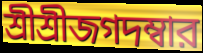
শ্রীশ্রীজগদম্বার